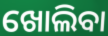
ଖୋଲିବା